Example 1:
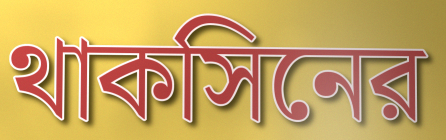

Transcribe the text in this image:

থাকসিনের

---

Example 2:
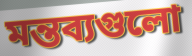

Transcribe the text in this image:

মন্তব্যগুলো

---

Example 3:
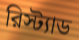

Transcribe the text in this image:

রিস্ট্যাড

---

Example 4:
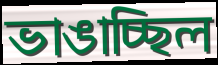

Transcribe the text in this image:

ভাঙাচ্ছিল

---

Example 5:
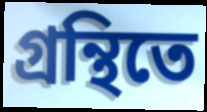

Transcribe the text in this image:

গ্রন্থিতে